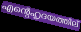
എന്റെഹൃദയത്തില്